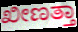
ಖೀಣತ್ತಾ